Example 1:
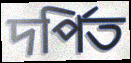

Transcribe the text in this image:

দর্পিত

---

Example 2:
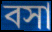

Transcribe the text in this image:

বসা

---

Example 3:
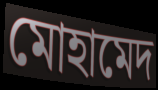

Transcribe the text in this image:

মোহামেদ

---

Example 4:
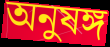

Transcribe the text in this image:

অনুষঙ্গ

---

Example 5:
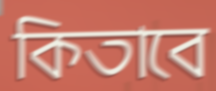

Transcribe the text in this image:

কিতাবে